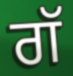
ਗੱ